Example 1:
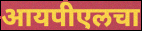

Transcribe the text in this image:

आयपीएलचा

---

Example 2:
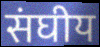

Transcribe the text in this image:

संघीय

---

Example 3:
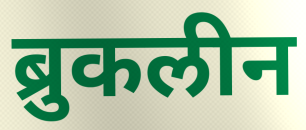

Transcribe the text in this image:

ब्रुकलीन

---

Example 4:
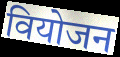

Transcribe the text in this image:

वियोजन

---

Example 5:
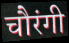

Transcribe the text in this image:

चौरंगी